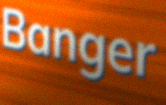
Banger